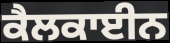
ਕੈਲਕਾਈਨ